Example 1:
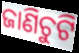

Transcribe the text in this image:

ଜାଣିଚୁଟି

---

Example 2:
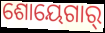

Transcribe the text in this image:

ଶୋୟେଗାର୍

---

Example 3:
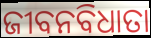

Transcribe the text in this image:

ଜୀବନବିଧାତା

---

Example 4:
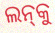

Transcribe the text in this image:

ଲନ୍‌କୁ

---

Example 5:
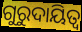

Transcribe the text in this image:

ଗୁରୁଦାୟିତ୍ଵ